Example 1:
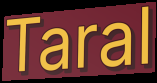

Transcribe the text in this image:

Taral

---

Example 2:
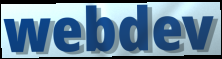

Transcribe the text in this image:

webdev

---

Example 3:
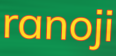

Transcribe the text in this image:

ranoji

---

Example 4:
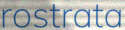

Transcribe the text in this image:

rostrata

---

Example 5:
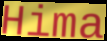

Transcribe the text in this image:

Hima